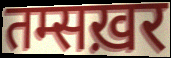
तम्सख़र